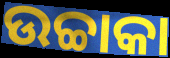
ଉଚ୍ଚାକା